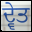
ਦ੍ਵੇਤ